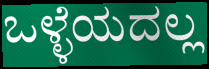
ಒಳ್ಳೆಯದಲ್ಲ